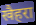
खैहरा